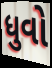
ધુવો